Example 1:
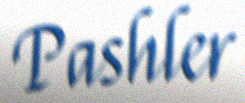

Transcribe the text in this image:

Pashler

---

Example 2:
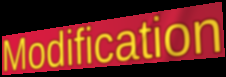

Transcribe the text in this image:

Modification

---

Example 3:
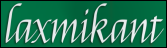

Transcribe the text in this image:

laxmikant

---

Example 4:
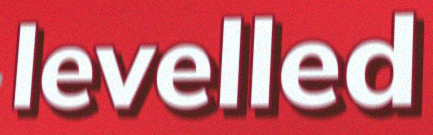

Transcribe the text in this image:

levelled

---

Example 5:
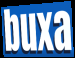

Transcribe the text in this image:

buxa